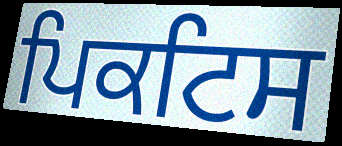
ਪਿਕਟਿਸ